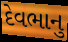
દેવભાનુ